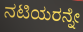
ನಟಿಯರನ್ನೇ